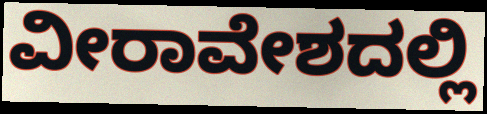
ವೀರಾವೇಶದಲ್ಲಿ